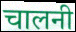
चालनी